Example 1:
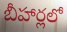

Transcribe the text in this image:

బీహార్లలో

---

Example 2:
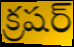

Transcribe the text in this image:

క్రషర్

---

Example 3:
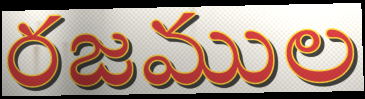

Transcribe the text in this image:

రజముల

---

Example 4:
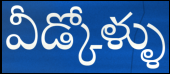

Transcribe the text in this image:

వీడ్కోళ్ళు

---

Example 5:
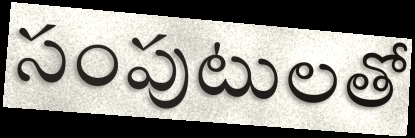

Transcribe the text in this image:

సంపుటులతో